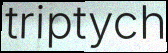
triptych